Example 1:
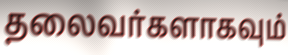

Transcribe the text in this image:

தலைவர்களாகவும்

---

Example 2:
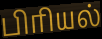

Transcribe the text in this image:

பிரியல்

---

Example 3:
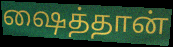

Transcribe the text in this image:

ஷைத்தான்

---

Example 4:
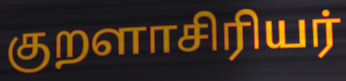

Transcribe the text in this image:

குறளாசிரியர்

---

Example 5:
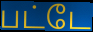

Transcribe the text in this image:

பட்டே